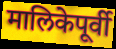
मालिकेपूर्वी